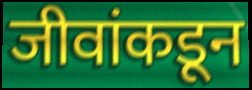
जीवांकडून